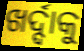
ଖର୍ଦ୍ଦାକୁ